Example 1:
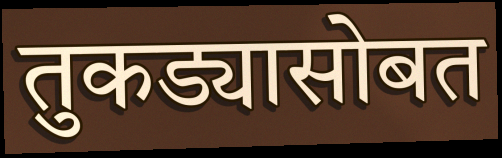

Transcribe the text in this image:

तुकड्यासोबत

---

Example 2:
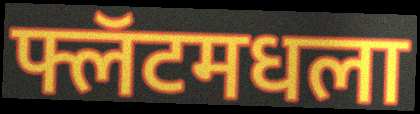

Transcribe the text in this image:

फ्लॅटमधला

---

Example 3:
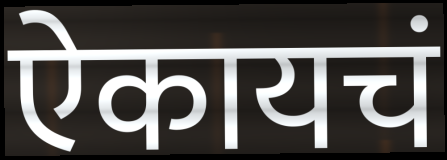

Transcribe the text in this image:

ऐकायचं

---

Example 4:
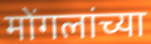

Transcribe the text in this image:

मोंगलांच्या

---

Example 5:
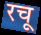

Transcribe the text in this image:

रचू